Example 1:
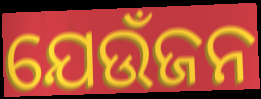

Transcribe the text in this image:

ଯେଉଁଜନ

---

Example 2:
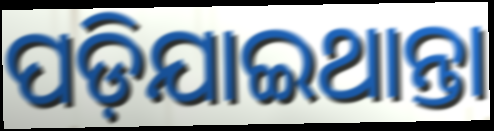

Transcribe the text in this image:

ପଡ଼ିଯାଇଥାନ୍ତା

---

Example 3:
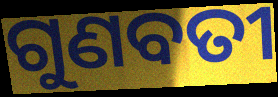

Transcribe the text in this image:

ଗୁଣବତୀ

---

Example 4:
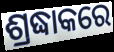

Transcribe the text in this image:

ଶ୍ରଦ୍ଧାକରେ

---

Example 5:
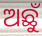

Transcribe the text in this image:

ଅଛୁଁ